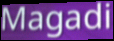
Magadi